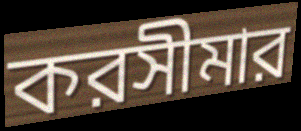
করসীমার